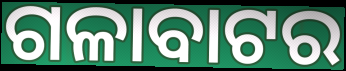
ଗଳାବାଟର